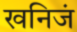
खनिजं